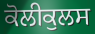
ਕੋਲੀਕੁਲਸ